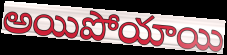
అయిపోయాయి